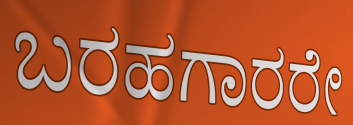
ಬರಹಗಾರರೇ